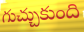
గుచ్చుకుంది